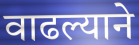
वाढल्याने